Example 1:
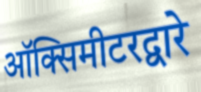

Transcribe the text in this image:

ऑक्सिमीटरद्वारे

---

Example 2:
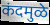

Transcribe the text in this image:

कंदमुळे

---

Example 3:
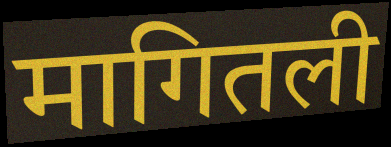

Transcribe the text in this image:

मागितली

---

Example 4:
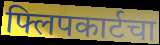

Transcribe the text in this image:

फ्लिपकार्टचा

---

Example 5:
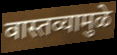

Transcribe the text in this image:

वास्तव्यामुळे